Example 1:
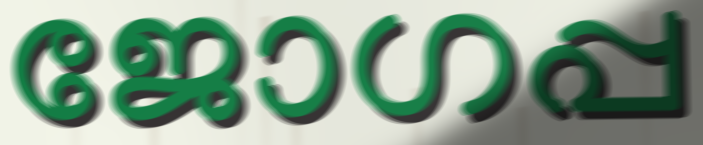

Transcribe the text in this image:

ജോഗപ്പ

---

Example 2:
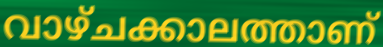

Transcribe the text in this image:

വാഴ്ചക്കാലത്താണ്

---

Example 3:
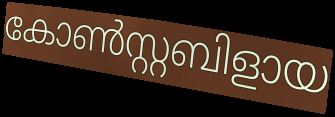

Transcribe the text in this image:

കോൺസ്റ്റബിളായ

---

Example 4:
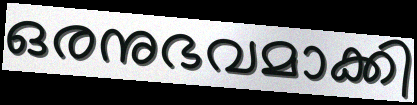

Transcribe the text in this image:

ഒരനുഭവമാക്കി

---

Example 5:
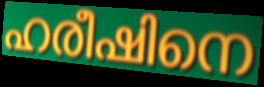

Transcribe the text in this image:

ഹരീഷിനെ